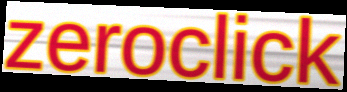
zeroclick